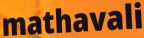
mathavali